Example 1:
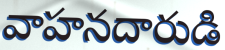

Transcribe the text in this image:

వాహనదారుడి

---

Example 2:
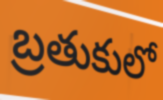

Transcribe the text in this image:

బ్రతుకులో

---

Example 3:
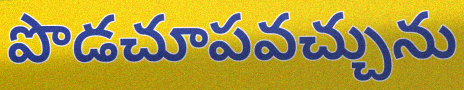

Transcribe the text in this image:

పొడచూపవచ్చును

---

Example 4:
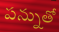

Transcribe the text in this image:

పన్నుతో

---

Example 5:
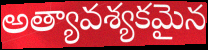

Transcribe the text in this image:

అత్యావశ్యకమైన